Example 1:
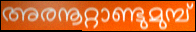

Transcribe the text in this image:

അരനൂറ്റാണ്ടുമുമ്പ്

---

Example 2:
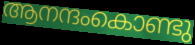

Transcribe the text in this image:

ആനന്ദംകൊണ്ടു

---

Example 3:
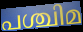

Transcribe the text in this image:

പശ്ചിമ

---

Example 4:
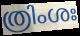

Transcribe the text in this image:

ത്രിംശഃ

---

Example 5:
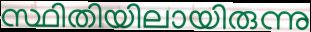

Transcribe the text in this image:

സ്ഥിതിയിലായിരുന്നു